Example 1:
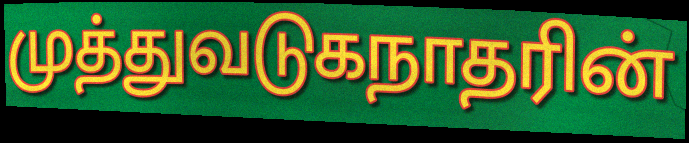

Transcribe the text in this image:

முத்துவடுகநாதரின்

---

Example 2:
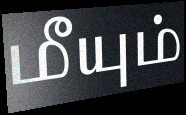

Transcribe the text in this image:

மீயும்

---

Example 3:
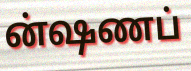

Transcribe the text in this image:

ன்ஷணப்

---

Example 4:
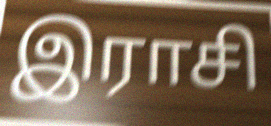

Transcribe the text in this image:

இராசி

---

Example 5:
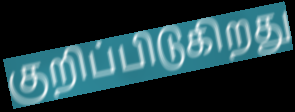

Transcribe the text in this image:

குறிப்பிடுகிறது